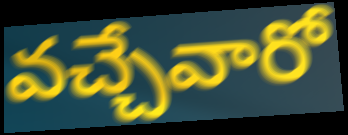
వచ్చేవారో